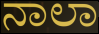
ನಾಲಾ